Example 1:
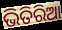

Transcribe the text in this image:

ଭିତିରିଆ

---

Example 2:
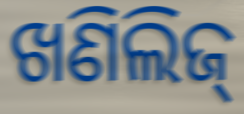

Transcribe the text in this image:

ଖଣିଲିଜ୍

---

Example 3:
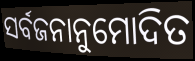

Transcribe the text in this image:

ସର୍ବଜନାନୁମୋଦିତ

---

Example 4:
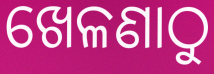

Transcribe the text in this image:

ଖେଳଣାଠୁ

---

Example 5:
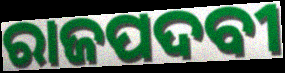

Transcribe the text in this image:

ରାଜପଦବୀ